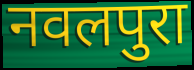
नवलपुरा